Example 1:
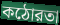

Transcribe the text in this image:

কঠোরতা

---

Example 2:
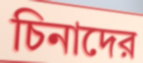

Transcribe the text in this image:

চিনাদের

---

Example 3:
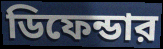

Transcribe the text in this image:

ডিফেন্ডার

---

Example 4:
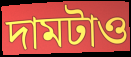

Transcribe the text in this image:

দামটাও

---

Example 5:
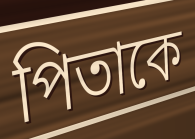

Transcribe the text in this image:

পিতাকে